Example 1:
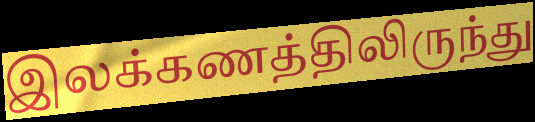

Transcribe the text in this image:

இலக்கணத்திலிருந்து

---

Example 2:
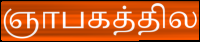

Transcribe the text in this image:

ஞாபகத்தில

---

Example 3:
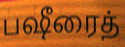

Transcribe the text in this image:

பஷீரைத்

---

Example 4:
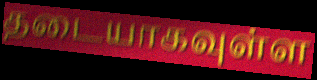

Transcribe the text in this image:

தடையாகவுள்ள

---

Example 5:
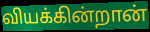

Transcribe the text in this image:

வியக்கின்றான்